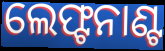
ଲେଫ୍ଟନାଣ୍ଟ